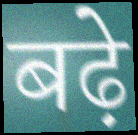
बढ़े